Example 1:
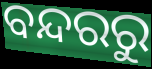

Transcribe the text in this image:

ବନ୍ଦରରୁ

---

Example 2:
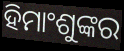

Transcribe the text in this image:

ହିମାଂଶୁଙ୍କର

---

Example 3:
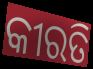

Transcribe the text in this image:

କୀରତି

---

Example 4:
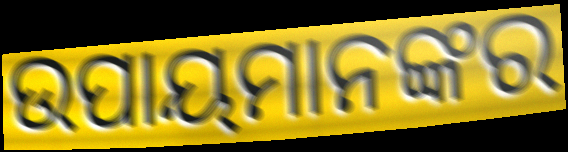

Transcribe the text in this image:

ଉପାୟମାନଙ୍କର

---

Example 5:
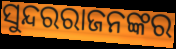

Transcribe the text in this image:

ସୁନ୍ଦରରାଜନଙ୍କର